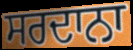
ਸਰਦਾਨਾ